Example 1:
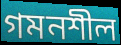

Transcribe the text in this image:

গমনশীল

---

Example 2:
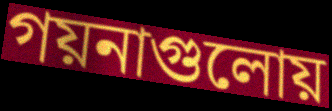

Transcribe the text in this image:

গয়নাগুলোয়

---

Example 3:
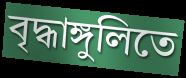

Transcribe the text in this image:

বৃদ্ধাঙ্গুলিতে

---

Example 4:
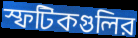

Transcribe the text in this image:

স্ফটিকগুলির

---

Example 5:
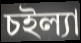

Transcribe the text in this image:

চইল্যা